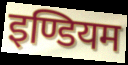
इण्डियम